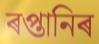
ৰপ্তানিৰ